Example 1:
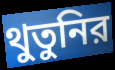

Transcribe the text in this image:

থুতুনির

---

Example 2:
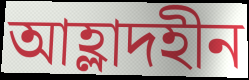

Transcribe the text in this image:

আহ্লাদহীন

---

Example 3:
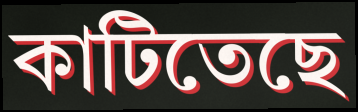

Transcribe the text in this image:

কাটিতেছে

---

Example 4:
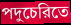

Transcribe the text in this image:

পদুচেরিতে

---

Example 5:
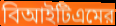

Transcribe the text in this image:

বিআইটিএমের